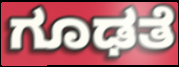
ಗೂಢತೆ